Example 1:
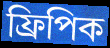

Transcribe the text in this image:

ফ্রিপিক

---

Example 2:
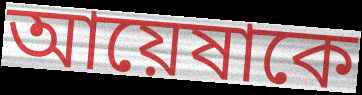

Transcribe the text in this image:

আয়েষাকে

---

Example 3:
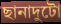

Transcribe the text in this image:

ছানাদুটো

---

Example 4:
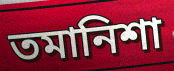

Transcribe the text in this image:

তমানিশা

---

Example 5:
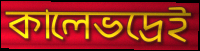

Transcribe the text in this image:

কালেভদ্রেই